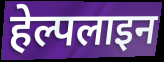
हेल्पलाइन